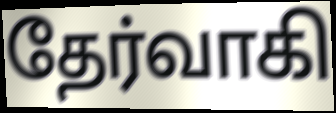
தேர்வாகி